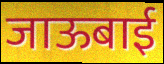
जाऊबाई